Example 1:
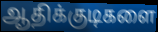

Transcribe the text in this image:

ஆதிக்குடிகளை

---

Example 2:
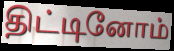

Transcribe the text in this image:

திட்டினோம்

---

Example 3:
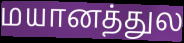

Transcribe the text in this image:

மயானத்துல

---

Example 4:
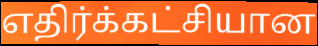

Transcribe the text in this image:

எதிர்க்கட்சியான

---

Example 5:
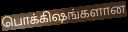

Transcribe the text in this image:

பொக்கிஷங்களான